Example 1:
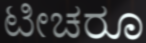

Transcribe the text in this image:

ಟೀಚರೂ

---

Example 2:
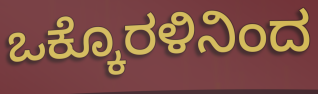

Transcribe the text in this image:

ಒಕ್ಕೊರಳಿನಿಂದ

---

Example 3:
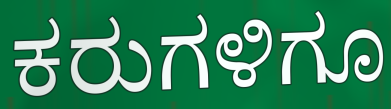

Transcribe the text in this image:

ಕರುಗಳಿಗೂ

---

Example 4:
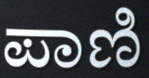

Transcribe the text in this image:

ಪಾಣಿ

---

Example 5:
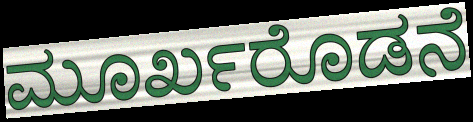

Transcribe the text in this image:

ಮೂರ್ಖರೊಡನೆ